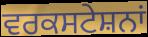
ਵਰਕਸਟੇਸ਼ਨਾਂ